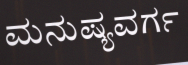
ಮನುಷ್ಯವರ್ಗ